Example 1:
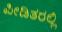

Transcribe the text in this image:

ಪೀಡಿತರಲ್ಲಿ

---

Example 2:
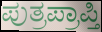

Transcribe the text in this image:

ಪುತ್ರಪ್ರಾಪ್ತಿ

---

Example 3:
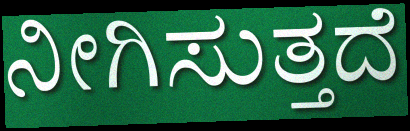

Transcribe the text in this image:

ನೀಗಿಸುತ್ತದೆ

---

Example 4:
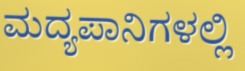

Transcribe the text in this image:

ಮದ್ಯಪಾನಿಗಳಲ್ಲಿ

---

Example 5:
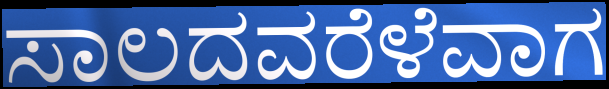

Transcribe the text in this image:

ಸಾಲದವರೆಳೆವಾಗ